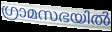
ഗ്രാമസഭയിൽ